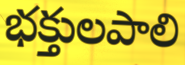
భక్తులపాలి